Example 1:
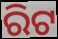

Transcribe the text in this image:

ରିଟ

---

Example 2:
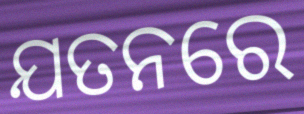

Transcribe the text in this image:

ଯତନରେ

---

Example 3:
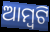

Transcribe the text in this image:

ଆମ୍ୱଟି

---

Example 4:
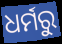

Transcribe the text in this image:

ଧର୍ମରୁ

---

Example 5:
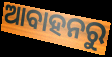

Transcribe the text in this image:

ଆବାହନରୁ